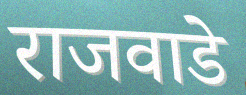
राजवाडे